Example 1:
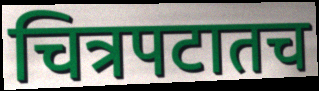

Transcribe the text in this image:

चित्रपटातच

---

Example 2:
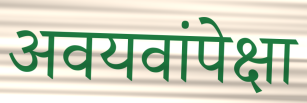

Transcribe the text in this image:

अवयवांपेक्षा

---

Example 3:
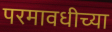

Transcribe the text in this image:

परमावधीच्या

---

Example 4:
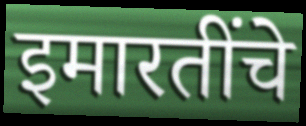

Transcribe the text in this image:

इमारतींचे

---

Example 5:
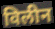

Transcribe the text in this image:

विलीन